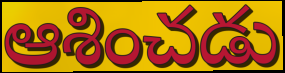
ఆశించడు